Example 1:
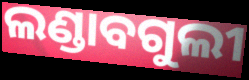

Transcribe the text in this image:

ଲଣ୍ଡାବଗୁଲୀ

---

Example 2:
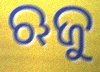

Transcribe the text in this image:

ଋଜୁ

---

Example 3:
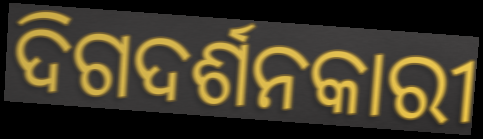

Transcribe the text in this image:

ଦିଗଦର୍ଶନକାରୀ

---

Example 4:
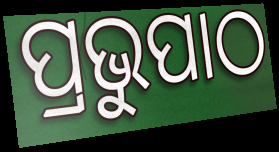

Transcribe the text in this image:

ପ୍ରଭୁପାଠ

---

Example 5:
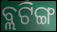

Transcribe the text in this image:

ବ୍ଲଟିଙ୍ଗ